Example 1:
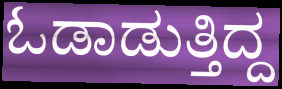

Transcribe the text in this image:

ಓಡಾಡುತ್ತಿದ್ದ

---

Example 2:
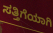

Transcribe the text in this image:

ಸತ್ತಿಗೆಯಾಗಿ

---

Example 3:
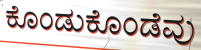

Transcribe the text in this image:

ಕೊಂಡುಕೊಂಡೆವು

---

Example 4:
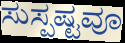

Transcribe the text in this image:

ಸುಸ್ಪಷ್ಟವೂ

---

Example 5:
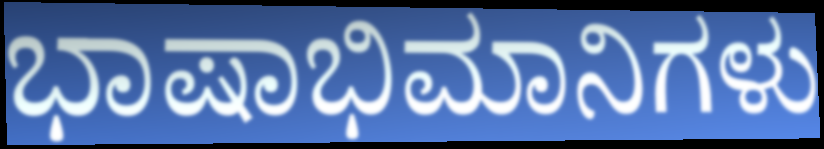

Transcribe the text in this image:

ಭಾಷಾಭಿಮಾನಿಗಳು